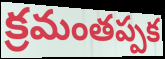
క్రమంతప్పక